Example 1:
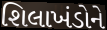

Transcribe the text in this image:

શિલાખંડોને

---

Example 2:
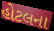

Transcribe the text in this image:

હોટલના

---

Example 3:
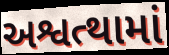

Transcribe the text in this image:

અશ્વત્થામાં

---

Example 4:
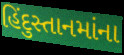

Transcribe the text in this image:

હિંદુસ્તાનમાંના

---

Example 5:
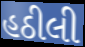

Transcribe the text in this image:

હઠીલી